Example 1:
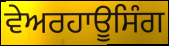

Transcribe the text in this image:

ਵੇਅਰਹਾਊਸਿੰਗ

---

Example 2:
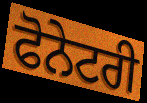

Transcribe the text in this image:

ਫੋਨੇਟਰੀ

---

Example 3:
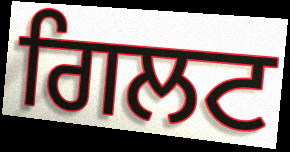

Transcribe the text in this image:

ਗਿਲਟ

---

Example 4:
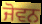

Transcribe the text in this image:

ਜੋਵਨ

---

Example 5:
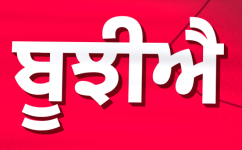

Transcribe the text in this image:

ਬੂਝੀਐ